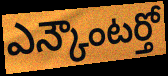
ఎన్కౌంటర్తో